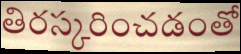
తిరస్కరించడంతో